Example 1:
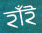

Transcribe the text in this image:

হাঁই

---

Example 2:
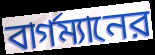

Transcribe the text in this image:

বার্গম্যানের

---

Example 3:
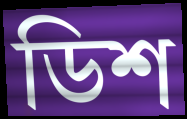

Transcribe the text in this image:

ডিশ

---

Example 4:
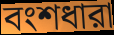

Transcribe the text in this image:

বংশধারা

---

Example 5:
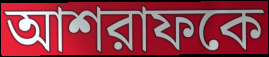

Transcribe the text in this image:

আশরাফকে